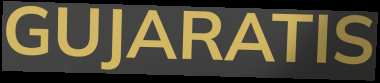
GUJARATIS